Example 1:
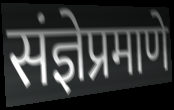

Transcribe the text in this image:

संज्ञेप्रमाणे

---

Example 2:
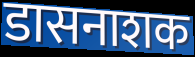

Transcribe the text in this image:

डासनाशक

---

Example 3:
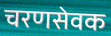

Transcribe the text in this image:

चरणसेवक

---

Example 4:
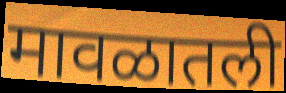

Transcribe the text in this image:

मावळातली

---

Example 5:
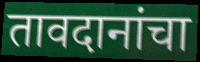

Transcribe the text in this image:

तावदानांचा